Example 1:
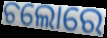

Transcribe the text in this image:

ଚଲୋରେ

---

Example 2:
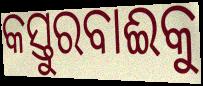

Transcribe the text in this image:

କସ୍ତୁରବାଈକୁ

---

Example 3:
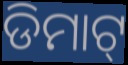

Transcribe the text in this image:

ଡିମାଟ୍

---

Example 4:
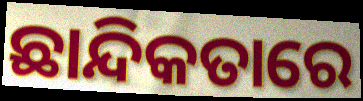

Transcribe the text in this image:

ଛାନ୍ଦିକତାରେ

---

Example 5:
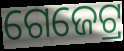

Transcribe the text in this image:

ଗେଜେଟ୍ର